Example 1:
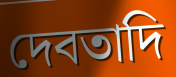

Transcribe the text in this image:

দেবতাদি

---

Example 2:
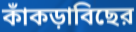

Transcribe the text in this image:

কাঁকড়াবিছের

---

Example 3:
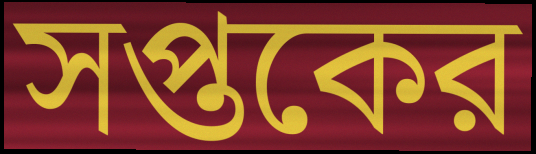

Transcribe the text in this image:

সপ্তকের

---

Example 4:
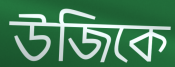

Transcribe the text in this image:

উজিকে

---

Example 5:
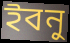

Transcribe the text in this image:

ইবনু